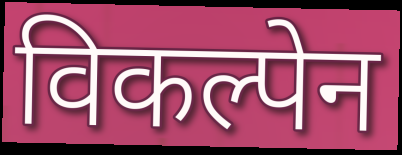
विकल्पेन